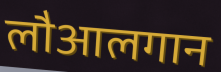
लौआलगान